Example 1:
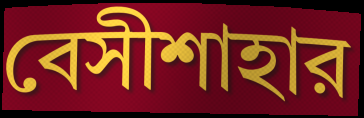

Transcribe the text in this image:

বেসীশাহার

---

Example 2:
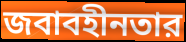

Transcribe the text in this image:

জবাবহীনতার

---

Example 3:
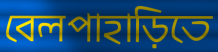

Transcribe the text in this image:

বেলপাহাড়িতে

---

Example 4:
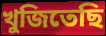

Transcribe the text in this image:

খুজিতেছি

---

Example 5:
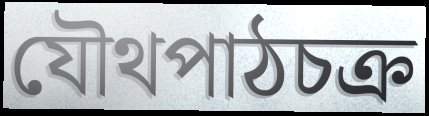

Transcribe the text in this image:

যৌথপাঠচক্র